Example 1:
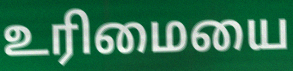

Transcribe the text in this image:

உரிமையை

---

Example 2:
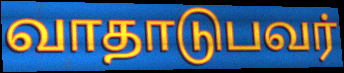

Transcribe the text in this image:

வாதாடுபவர்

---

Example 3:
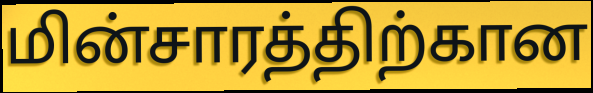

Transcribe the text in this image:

மின்சாரத்திற்கான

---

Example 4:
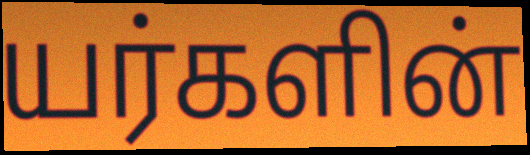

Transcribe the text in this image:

யர்களின்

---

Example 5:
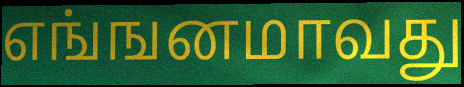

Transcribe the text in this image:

எங்ஙனமாவது